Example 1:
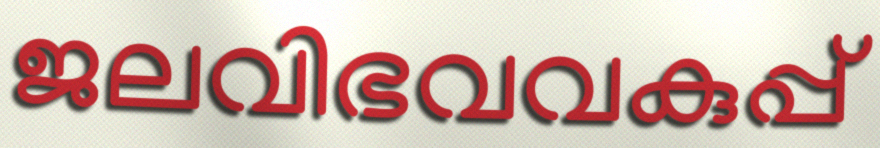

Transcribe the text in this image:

ജലവിഭവവകുപ്പ്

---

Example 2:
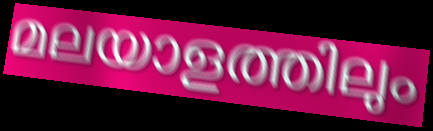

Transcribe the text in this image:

മലയാളത്തിലും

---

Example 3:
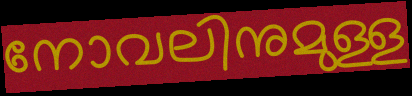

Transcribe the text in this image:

നോവലിനുമുള്ള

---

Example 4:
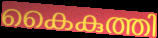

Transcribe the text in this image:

കൈകുത്തി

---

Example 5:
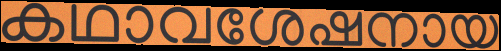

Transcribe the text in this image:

കഥാവശേഷനായ